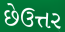
છેઉત્તર